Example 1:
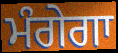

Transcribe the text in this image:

ਮੰਗੇਗਾ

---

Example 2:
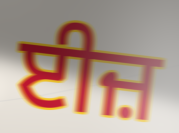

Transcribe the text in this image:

ਈਜ਼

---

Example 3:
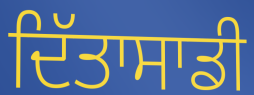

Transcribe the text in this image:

ਦਿੱਤਾਸਾਡੀ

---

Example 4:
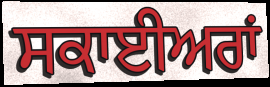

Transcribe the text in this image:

ਸਕਾਈਅਰਾਂ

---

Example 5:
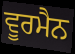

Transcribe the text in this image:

ਵੂਰਮੈਨ